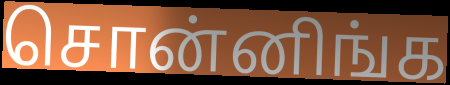
சொன்னிங்க